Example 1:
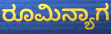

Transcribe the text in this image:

ರೂಮಿನ್ಯಾಗ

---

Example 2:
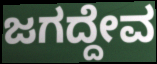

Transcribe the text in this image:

ಜಗದ್ದೇವ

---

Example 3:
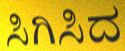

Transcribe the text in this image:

ಸಿಗಿಸಿದ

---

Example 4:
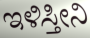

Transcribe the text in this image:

ಇಳಿಸ್ತೀನಿ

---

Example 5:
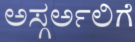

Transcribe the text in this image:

ಅಸ್ಗರ್ಅಲಿಗೆ